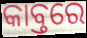
କାବ୍ତରେ